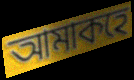
আমাকহে